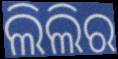
ଲିଲିର